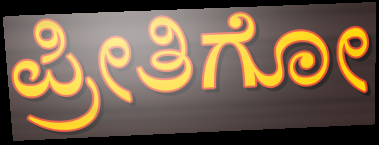
ಪ್ರೀತಿಗೋ